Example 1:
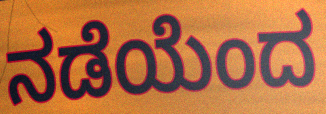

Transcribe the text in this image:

ನಡೆಯೆಂದ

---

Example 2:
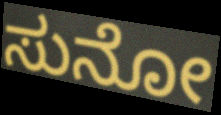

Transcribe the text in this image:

ಸುನೋ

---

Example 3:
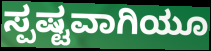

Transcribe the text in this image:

ಸ್ಪಷ್ಟವಾಗಿಯೂ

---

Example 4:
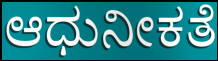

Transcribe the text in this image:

ಆಧುನೀಕತೆ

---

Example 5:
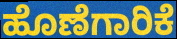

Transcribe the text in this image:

ಹೊಣೆಗಾರಿಕೆ